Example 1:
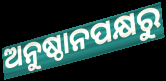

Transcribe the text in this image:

ଅନୁଷ୍ଠାନପକ୍ଷରୁ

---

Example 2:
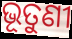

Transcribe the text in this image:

ଭୂତୁଣୀ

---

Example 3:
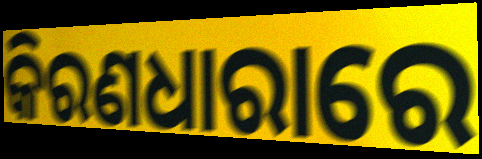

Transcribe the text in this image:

କିରଣଧାରାରେ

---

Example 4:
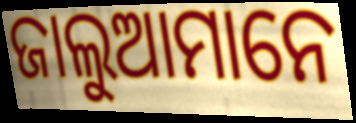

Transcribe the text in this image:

ଜାଲୁଆମାନେ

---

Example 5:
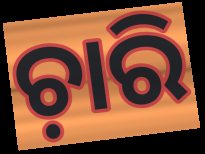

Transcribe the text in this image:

ଚ଼ାରି